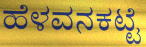
ಹೆಳವನಕಟ್ಟೆ